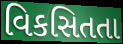
વિકસિતતા